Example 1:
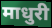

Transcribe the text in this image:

माधुरी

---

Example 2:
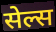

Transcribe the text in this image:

सेल्स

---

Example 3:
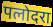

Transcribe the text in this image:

पलोदरा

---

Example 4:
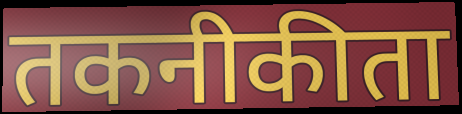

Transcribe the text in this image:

तकनीकीता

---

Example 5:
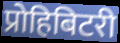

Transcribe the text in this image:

प्रोहिबिटरी